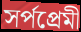
সর্পপ্রেমী